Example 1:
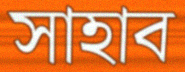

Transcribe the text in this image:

সাহাব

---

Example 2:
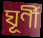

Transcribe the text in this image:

ঘূৰ্ণী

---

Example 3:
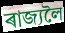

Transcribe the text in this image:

ৰাজ্যলৈ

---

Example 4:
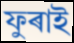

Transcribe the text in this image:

ফুৰাই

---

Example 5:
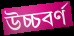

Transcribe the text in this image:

উচ্চবৰ্ণ